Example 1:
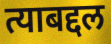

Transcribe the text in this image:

त्याबद्दल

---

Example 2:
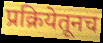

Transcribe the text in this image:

प्रक्रियेतूनच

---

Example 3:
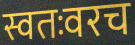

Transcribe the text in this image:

स्वतःवरच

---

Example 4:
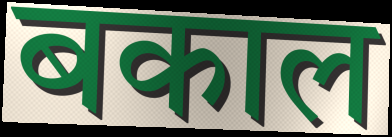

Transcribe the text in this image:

बकाल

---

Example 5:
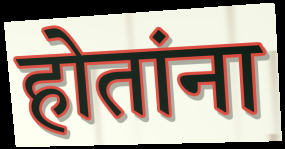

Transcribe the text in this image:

होतांना